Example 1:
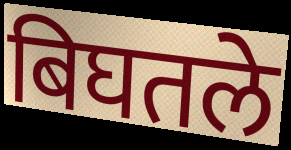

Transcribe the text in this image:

बिघतले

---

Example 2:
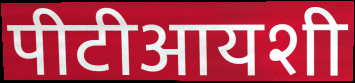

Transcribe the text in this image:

पीटीआयशी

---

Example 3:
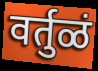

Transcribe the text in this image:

वर्तुळं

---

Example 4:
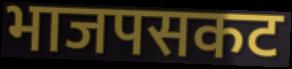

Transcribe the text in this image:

भाजपसकट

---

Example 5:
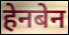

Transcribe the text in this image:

हेनबेन